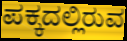
ಪಕ್ಕದಲ್ಲಿರುವ